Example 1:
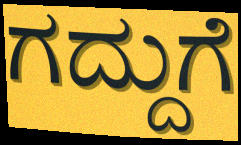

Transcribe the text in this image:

ಗದ್ದುಗೆ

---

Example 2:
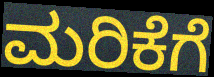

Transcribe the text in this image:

ಮರಿಕೆಗೆ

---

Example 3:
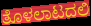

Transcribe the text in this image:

ತೊಳಲಾಟದಲಿ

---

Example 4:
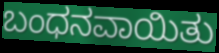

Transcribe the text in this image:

ಬಂಧನವಾಯಿತು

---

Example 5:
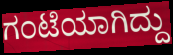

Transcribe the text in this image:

ಗಂಟೆಯಾಗಿದ್ದು